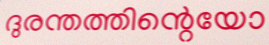
ദുരന്തത്തിന്റെയോ